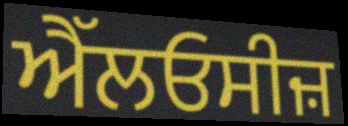
ਐੱਲਓਸੀਜ਼